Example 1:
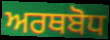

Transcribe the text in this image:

ਅਰਥਬੋਧ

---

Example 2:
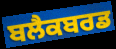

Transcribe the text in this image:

ਬਲੈਕਬਰਡ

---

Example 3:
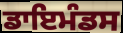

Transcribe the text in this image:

ਡਾਇਮੰਡਸ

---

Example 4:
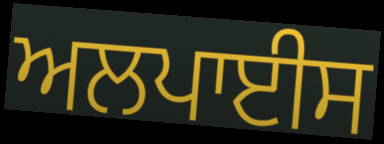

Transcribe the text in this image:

ਅਲਪਾਈਸ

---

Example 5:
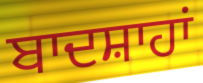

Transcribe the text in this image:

ਬਾਦਸ਼ਾਹਾਂ